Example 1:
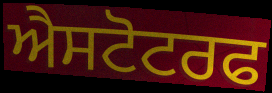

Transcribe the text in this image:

ਐਸਟੋਟਰਫ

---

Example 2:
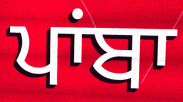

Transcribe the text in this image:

ਪਾਂਬਾ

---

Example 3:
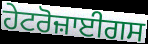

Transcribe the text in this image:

ਹੇਟਰੋਜ਼ਾਈਗਸ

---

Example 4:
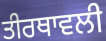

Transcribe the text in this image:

ਤੀਰਥਾਵਲੀ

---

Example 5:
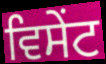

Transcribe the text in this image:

ਵਿਸੇਂਟ